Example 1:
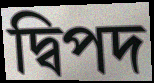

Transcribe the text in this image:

দ্বিপদ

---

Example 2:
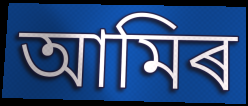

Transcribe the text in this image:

আমিৰ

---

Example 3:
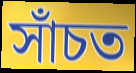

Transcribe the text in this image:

সাঁচত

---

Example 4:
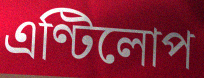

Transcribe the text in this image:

এণ্টিলোপ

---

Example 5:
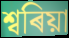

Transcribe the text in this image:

শ্বৰিয়া